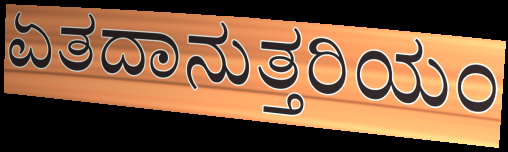
ಏತದಾನುತ್ತರಿಯಂ